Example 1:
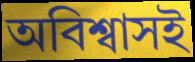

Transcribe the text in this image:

অবিশ্বাসই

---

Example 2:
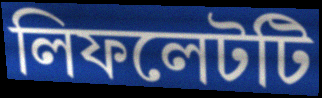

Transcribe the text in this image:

লিফলেটটি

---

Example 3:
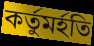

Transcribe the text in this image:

কর্তুমর্হতি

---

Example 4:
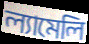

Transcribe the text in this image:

ল্যামেলি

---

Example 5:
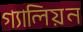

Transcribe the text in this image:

গ্যালিয়ন